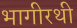
भागीरथी